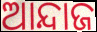
ଆନ୍ଦାଜ